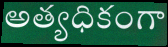
అత్యధికంగా